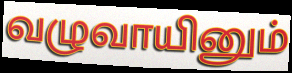
வழுவாயினும்